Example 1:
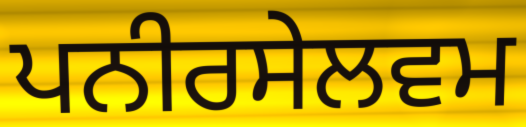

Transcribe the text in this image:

ਪਨੀਰਸੇਲਵਮ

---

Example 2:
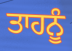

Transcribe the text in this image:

ਤਾਹਨੂੰ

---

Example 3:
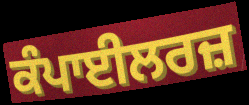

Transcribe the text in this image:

ਕੰਪਾਈਲਰਜ਼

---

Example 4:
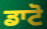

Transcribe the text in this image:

ਡਾਟੋ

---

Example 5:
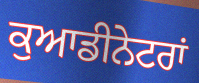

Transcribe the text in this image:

ਕੁਆਡੀਨੇਟਰਾਂ